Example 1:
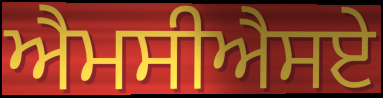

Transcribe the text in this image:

ਐਮਸੀਐਸਏ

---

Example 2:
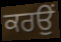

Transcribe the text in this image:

ਕਰਉਂ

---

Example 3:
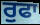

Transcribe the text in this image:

ਰੁਫਾ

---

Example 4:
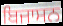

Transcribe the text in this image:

ਬਿਜਾਸਨ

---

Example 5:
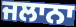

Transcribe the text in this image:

ਜਲਾਨਾ